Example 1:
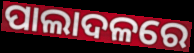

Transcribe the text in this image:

ପାଲାଦଳରେ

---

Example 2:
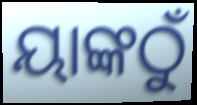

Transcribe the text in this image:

ୟାଙ୍କଠୁଁ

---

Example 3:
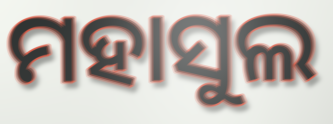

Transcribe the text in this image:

ମହାସୁଲ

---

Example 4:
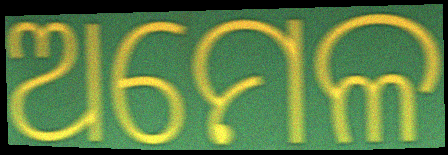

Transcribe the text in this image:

ଅମେଳ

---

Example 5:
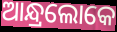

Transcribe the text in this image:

ଆନ୍ଧ୍ରଲୋକେ